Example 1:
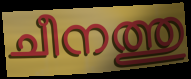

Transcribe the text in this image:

ചീനത്തു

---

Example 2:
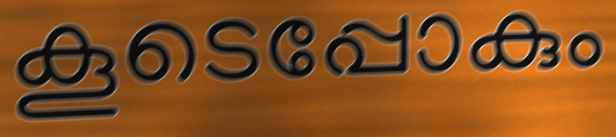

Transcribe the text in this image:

കൂടെപ്പോകും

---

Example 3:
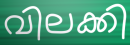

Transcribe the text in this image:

വിലക്കി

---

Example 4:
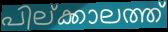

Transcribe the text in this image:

പില്ക്കാലത്ത്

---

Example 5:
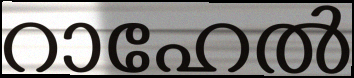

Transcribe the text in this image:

റാഹേൽ